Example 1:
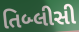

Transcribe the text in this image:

તિબ્લીસી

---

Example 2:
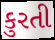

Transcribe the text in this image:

કુરતી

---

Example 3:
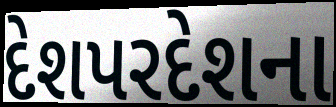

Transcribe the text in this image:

દેશપરદેશના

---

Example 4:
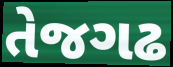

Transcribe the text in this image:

તેજગઢ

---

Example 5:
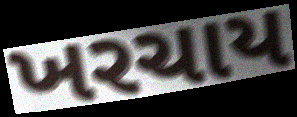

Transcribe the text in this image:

ખરચાય